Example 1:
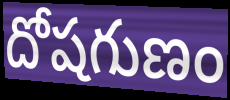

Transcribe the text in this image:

దోషగుణం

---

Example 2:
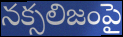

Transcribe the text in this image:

నక్సలిజంపై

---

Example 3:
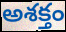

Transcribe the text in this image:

అశక్తం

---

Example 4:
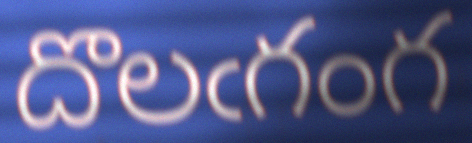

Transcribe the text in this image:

దొలఁగంగ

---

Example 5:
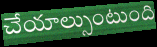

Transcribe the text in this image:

చేయాల్సుంటుంది